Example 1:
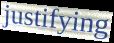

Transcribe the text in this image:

justifying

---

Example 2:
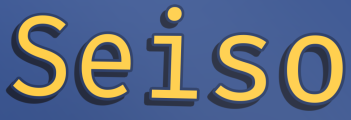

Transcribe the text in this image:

Seiso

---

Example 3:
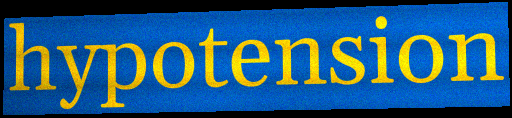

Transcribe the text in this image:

hypotension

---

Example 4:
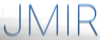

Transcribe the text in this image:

JMIR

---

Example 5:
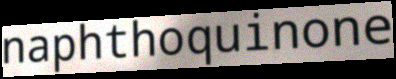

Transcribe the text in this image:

naphthoquinone